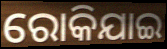
ରୋକିଯାଇ